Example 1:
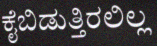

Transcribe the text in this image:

ಕೈಬಿಡುತ್ತಿರಲಿಲ್ಲ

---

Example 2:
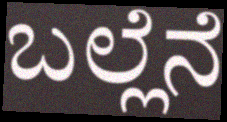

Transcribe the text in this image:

ಬಲ್ಲೆನೆ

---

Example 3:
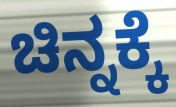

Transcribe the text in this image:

ಚಿನ್ನಕ್ಕೆ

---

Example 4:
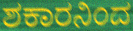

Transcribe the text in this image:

ಶಕಾರನಿಂದ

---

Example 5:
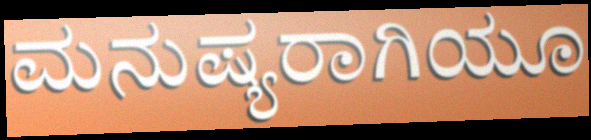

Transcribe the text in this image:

ಮನುಷ್ಯರಾಗಿಯೂ